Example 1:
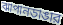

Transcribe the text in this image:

ঝাপানডাঙার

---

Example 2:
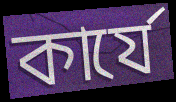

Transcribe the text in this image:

কার্যে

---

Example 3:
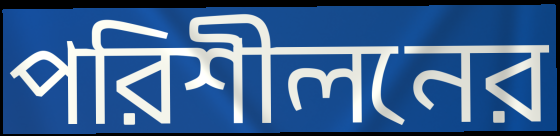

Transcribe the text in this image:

পরিশীলনের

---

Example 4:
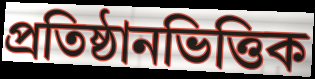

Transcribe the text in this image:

প্রতিষ্ঠানভিত্তিক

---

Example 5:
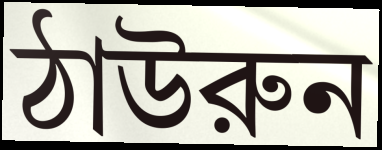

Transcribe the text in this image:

ঠাউরুন